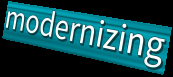
modernizing